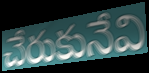
చేరుకునేవి